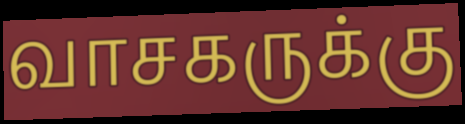
வாசகருக்கு